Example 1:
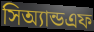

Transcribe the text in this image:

সিঅ্যান্ডএফ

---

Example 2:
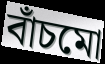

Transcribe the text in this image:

বাঁচমো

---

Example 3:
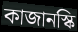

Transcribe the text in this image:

কাজানস্কি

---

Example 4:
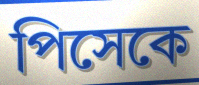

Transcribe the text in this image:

পিসেকে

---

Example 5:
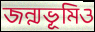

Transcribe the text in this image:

জন্মভূমিও